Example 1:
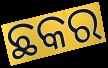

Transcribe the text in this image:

ଛକର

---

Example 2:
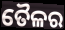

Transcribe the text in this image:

ତୈଳର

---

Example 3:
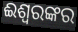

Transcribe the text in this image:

ଈଶ୍ୱରଙ୍କର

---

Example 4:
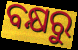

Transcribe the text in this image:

ବକ୍ଷରୁ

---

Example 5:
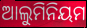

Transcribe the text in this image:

ଆଲୁମିନିୟମ